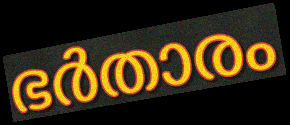
ഭർതാരം